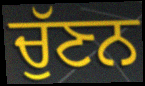
ਚੁੱਣਨ